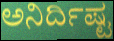
ಅನಿರ್ದಿಷ್ಟ